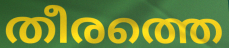
തീരത്തെ